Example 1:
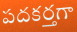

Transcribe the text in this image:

పదకర్తగా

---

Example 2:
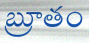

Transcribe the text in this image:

బ్రూతం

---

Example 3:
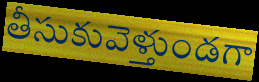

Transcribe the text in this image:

తీసుకువెళ్తుండగా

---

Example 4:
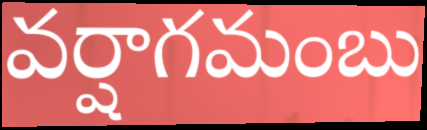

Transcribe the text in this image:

వర్షాగమంబు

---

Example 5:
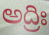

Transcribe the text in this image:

అద్రిః